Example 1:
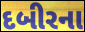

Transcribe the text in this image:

દબીરના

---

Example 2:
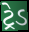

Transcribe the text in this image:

ટ્રેડ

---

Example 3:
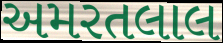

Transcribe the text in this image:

અમરતલાલ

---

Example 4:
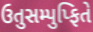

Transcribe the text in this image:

ઉતુસમ્પુપ્ફિતે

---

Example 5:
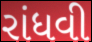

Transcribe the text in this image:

રાંધવી